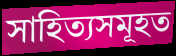
সাহিত্যসমূহত